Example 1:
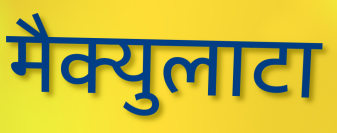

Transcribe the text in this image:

मैक्युलाटा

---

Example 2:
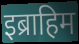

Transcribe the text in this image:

इब्राहिम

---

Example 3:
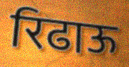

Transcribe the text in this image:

रिढाऊ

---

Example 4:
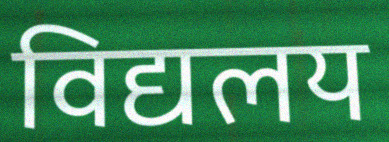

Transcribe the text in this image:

विद्यलय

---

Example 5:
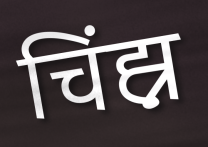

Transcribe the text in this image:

चिंह्न